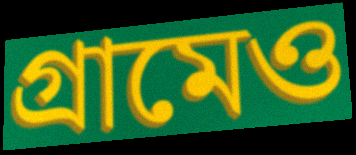
গ্রামেও